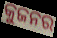
କୁଜନର